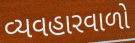
વ્યવહારવાળો